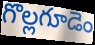
గొల్లగూడెం